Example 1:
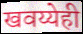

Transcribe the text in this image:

खवय्येही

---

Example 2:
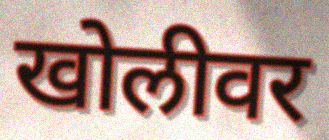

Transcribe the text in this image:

खोलीवर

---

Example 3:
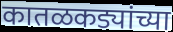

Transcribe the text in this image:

कातळकड्यांच्या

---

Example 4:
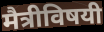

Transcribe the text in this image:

मैत्रीविषयी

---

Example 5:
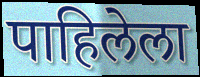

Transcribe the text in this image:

पाहिलेला